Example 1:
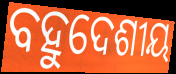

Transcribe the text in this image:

ବହୁଦେଶୀୟ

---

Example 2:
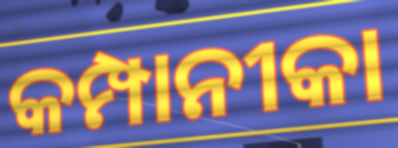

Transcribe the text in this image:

କମ୍ପାନୀକା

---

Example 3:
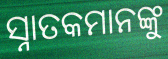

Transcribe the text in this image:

ସ୍ନାତକମାନଙ୍କୁ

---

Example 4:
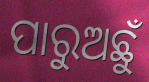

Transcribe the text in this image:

ପାରୁଅଛୁଁ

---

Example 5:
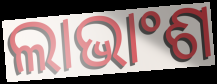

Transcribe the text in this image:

ଲାଭାଂଶ